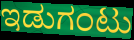
ಇಡುಗಂಟು